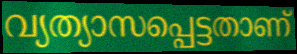
വ്യത്യാസപ്പെട്ടതാണ്